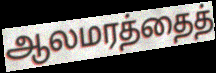
ஆலமரத்தைத்